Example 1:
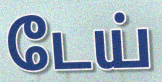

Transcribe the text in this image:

டேய்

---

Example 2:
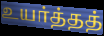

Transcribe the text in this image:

உயர்த்தத்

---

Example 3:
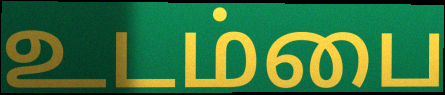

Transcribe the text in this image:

உடம்பை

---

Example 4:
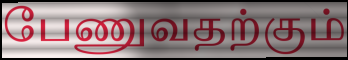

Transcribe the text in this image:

பேணுவதற்கும்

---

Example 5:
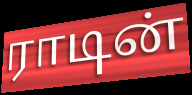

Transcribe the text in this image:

ராடின்